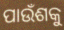
ପାଉଁଶକୁ